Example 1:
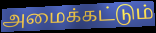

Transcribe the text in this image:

அமைக்கட்டும்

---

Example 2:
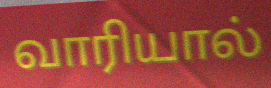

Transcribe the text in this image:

வாரியால்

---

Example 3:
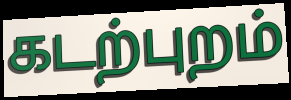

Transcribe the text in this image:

கடற்புறம்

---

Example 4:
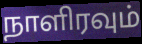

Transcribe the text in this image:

நாளிரவும்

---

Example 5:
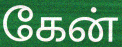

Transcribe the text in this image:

கேன்